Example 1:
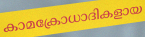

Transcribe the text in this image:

കാമക്രോധാദികളായ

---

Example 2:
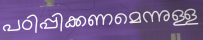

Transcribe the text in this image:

പഠിപ്പിക്കണമെന്നുള്ള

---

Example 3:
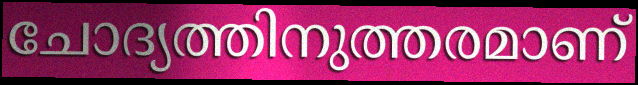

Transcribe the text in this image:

ചോദ്യത്തിനുത്തരമാണ്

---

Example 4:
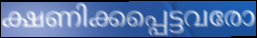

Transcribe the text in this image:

ക്ഷണിക്കപ്പെട്ടവരോ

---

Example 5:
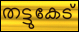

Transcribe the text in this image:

തട്ടുകേട്